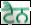
ਟੈਨ